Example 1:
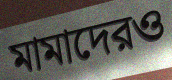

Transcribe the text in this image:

মামাদেরও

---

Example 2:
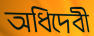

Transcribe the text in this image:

অধিদেবী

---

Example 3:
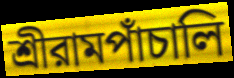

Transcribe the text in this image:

শ্রীরামপাঁচালি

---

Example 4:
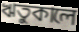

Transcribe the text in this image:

ঋতুকালে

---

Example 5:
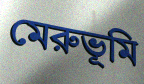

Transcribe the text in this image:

মেরুভূমি